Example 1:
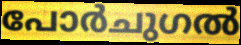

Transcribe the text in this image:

പോർചുഗൽ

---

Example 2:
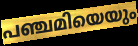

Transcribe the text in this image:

പഞ്ചമിയെയും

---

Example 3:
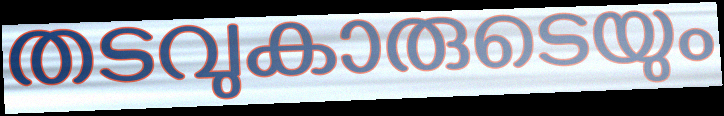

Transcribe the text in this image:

തടവുകാരുടെയും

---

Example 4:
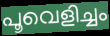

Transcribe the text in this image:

പൂവെളിച്ചം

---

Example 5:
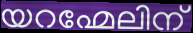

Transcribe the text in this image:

യറഹ്മേലിന്